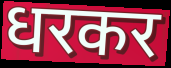
धरकर